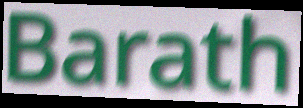
Barath